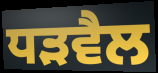
ਧੜਵੈਲ